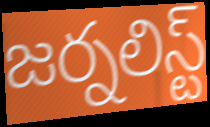
జర్నలిస్ట్